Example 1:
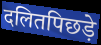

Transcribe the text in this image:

दलितपिछड़े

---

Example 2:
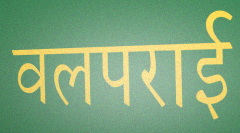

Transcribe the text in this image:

वलपराई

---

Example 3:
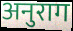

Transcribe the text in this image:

अनुराग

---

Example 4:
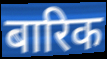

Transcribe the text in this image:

बारिक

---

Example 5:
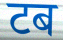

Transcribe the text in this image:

टब